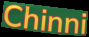
Chinni